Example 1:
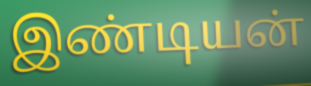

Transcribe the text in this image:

இண்டியன்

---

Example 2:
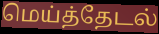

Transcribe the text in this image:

மெய்த்தேடல்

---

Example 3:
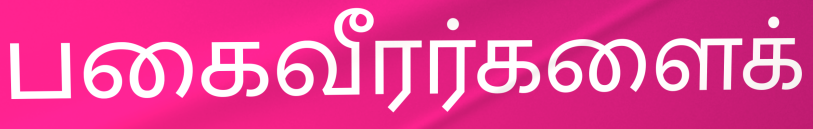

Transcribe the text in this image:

பகைவீரர்களைக்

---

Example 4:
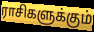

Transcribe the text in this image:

ராசிகளுக்கும்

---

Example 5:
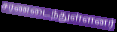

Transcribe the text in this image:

சரணடைந்துள்ளனர்